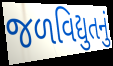
જળવિદ્યુતનું